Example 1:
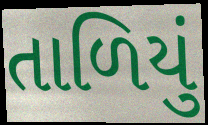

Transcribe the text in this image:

તાળિયું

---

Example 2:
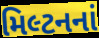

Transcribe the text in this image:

મિલ્ટનનાં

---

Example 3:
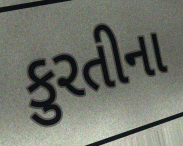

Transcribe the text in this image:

કુરતીના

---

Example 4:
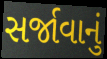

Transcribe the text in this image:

સર્જાવાનું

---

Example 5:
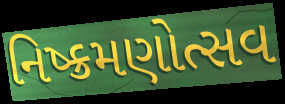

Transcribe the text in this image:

નિષ્ક્રમણોત્સવ